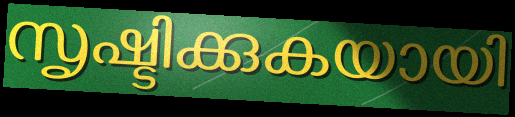
സൃഷ്ടിക്കുകയായി